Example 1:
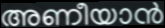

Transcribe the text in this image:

അണീയാൻ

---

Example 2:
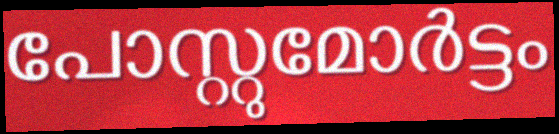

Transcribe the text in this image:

പോസ്റ്റുമോർട്ടം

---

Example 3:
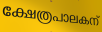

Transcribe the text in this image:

ക്ഷേത്രപാലകന്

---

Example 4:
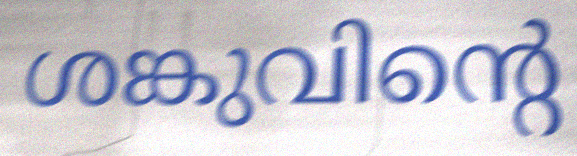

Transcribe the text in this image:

ശങ്കുവിന്റെ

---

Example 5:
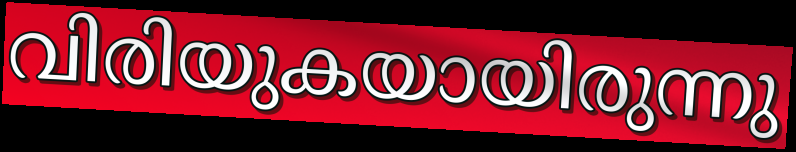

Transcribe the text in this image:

വിരിയുകയായിരുന്നു